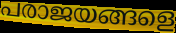
പരാജയങ്ങളെ